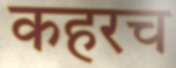
कहरच